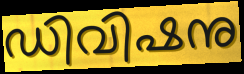
ഡിവിഷനു